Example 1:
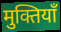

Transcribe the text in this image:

मुक्तियाँ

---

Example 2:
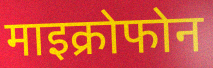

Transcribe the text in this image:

माइक्रोफोन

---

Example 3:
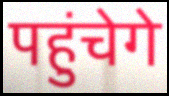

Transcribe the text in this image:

पहुंचेगे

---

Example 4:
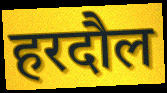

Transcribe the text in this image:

हरदौल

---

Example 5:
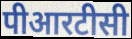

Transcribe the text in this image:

पीआरटीसी